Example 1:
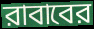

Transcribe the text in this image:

রাবাবের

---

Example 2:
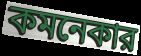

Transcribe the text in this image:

কমনেকার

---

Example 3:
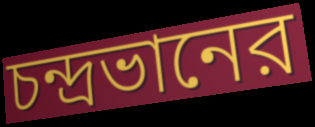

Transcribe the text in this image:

চন্দ্রভানের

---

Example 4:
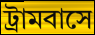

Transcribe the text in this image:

ট্রামবাসে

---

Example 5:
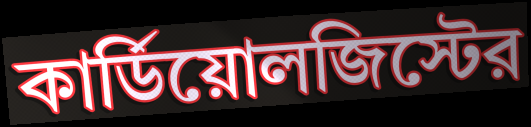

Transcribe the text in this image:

কার্ডিয়োলজিস্টের